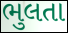
ભુલતા